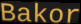
Bakor